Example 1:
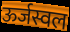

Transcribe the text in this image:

ऊर्जस्वल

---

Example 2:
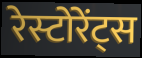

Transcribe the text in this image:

रेस्‍टोरेंट्स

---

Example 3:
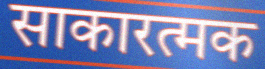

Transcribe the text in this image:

साकारत्मक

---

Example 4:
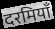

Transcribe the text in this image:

दरमियाँ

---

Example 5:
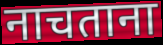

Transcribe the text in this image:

नाचताना